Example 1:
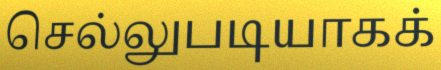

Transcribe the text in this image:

செல்லுபடியாகக்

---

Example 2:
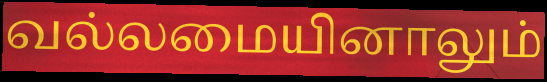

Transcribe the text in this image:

வல்லமையினாலும்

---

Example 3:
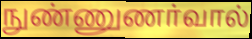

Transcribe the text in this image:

நுண்ணுணர்வால்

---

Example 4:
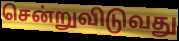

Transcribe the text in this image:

சென்றுவிடுவது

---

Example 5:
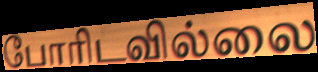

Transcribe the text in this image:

போரிடவில்லை